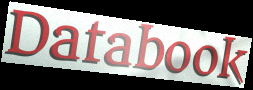
Databook